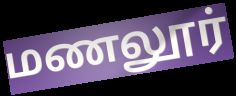
மணலூர்